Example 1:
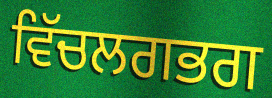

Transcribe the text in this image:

ਵਿੱਚਲਗਭਗ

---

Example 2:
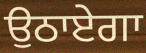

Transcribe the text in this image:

ਉਠਾਏਗਾ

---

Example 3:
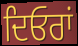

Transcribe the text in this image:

ਦਿਓਰਾਂ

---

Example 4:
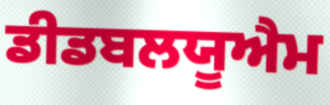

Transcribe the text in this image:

ਡੀਡਬਲਯੂਐਮ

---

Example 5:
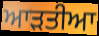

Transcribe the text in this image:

ਆੜਤੀਆ